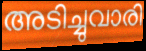
അടിച്ചുവാരി